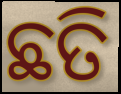
ଛତି